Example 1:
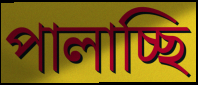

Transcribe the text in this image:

পালাচ্ছি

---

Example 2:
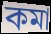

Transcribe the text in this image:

কমা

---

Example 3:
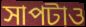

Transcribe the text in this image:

সাপটাও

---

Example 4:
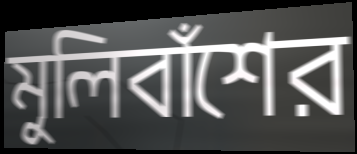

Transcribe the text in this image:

মুলিবাঁশের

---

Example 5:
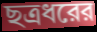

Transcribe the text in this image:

ছত্রধরের